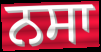
ਨਸਾ